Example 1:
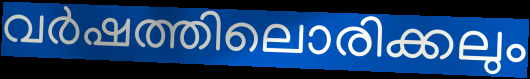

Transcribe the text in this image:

വർഷത്തിലൊരിക്കലും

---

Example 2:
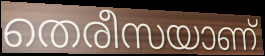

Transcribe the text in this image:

തെരീസയാണ്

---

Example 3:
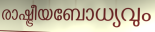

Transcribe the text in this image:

രാഷ്ട്രീയബോധ്യവും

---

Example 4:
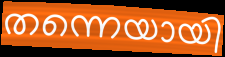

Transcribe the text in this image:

തന്നെയായി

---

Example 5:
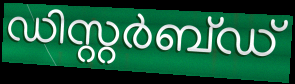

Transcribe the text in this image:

ഡിസ്റ്റർബ്ഡ്